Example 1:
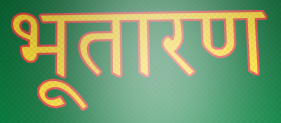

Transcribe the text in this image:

भूतारण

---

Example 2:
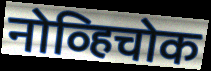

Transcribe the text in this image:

नोव्हिचोक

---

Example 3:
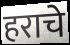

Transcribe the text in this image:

हराचे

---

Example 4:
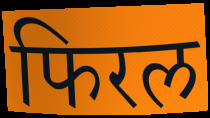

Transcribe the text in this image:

फिरल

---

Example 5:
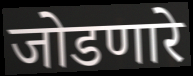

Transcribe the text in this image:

जोडणारे